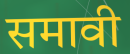
समावी